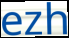
ezh